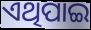
ଏଥିପାଇ